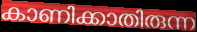
കാണിക്കാതിരുന്ന